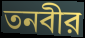
তনবীর